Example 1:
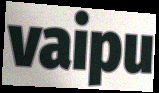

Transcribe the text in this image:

vaipu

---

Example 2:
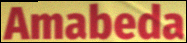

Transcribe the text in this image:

Amabeda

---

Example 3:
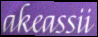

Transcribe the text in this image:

akeassii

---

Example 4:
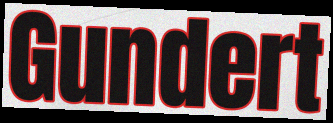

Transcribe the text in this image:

Gundert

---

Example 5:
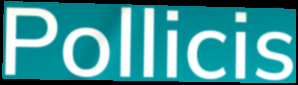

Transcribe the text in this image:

Pollicis